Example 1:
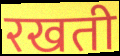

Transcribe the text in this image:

रखती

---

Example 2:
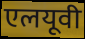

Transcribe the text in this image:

एलयूवी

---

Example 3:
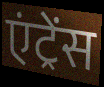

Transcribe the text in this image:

एंट्रेंस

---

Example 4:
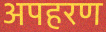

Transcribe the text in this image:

अपहरण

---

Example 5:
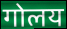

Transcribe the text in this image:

गोलय